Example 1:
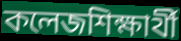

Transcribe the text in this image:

কলেজশিক্ষার্থী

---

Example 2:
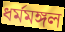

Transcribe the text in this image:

ধর্মমঙ্গল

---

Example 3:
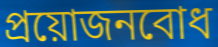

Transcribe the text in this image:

প্রয়োজনবোধ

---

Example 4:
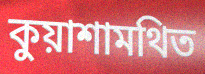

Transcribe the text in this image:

কুয়াশামথিত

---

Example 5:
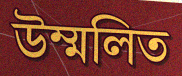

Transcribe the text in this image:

উম্মলিত